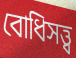
বোধিসত্ত্ব